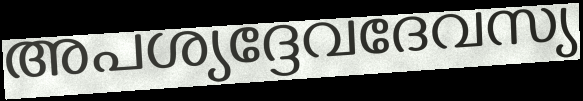
അപശ്യദ്ദേവദേവസ്യ